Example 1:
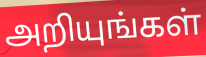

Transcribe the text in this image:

அறியுங்கள்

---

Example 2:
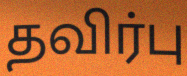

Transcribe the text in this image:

தவிர்பு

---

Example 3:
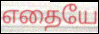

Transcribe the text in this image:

எதையே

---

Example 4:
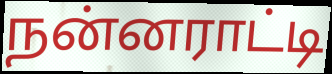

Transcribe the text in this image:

நன்னராட்டி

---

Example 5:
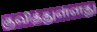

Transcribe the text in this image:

குவித்துள்ளது